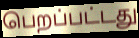
பெறப்பட்டது